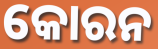
କୋରନ